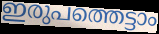
ഇരുപത്തെട്ടാം